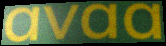
avaa